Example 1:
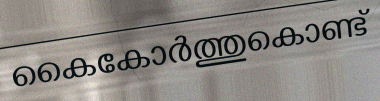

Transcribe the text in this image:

കൈകോർത്തുകൊണ്ട്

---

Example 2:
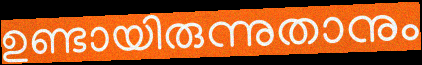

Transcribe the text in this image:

ഉണ്ടായിരുന്നുതാനും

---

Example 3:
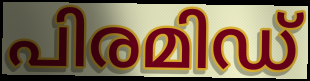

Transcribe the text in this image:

പിരമിഡ്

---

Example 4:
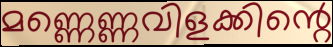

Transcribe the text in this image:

മണ്ണെണ്ണവിളക്കിന്റെ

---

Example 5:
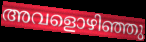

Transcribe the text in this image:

അവളൊഴിഞ്ഞു